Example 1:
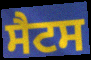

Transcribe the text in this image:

ਸੈਟਸ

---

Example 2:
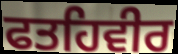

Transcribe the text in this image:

ਫਤਹਿਵੀਰ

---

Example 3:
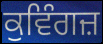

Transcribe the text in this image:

ਕੁਵਿੰਗਜ਼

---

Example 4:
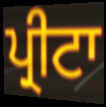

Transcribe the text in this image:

ਪ੍ਰੀਟਾ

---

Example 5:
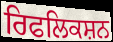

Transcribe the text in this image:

ਰਿਫਲਿਕਸ਼ਨ